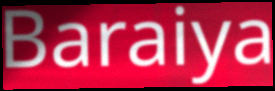
Baraiya